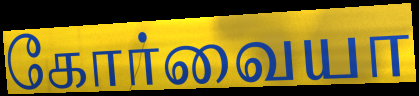
கோர்வையா